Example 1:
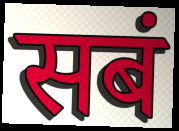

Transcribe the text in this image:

सबं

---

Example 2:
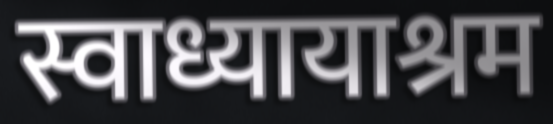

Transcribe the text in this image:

स्वाध्यायाश्रम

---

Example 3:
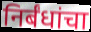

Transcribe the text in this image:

निर्बंधांचा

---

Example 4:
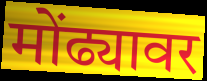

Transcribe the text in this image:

मोंढ्यावर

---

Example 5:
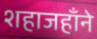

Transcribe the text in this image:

शहाजहाँने